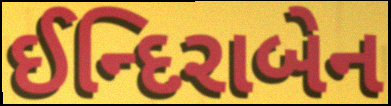
ઈન્દિરાબેન